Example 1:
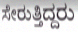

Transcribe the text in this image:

ಸೇರುತ್ತಿದ್ದರು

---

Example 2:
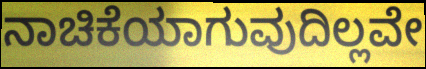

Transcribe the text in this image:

ನಾಚಿಕೆಯಾಗುವುದಿಲ್ಲವೇ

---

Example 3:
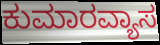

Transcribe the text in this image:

ಕುಮಾರವ್ಯಾಸ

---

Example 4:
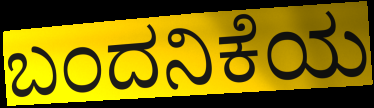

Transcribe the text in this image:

ಬಂದನಿಕೆಯ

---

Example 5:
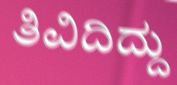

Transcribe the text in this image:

ತಿವಿದಿದ್ದು